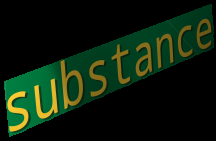
substance